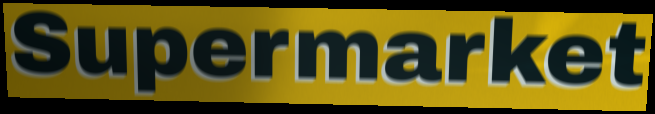
Supermarket